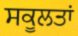
ਸਕੂਲਤਾਂ